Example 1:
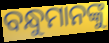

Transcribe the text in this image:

ବନ୍ଧୁମାନଙ୍କୁ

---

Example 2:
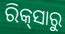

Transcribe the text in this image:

ରିକ୍‌ସାରୁ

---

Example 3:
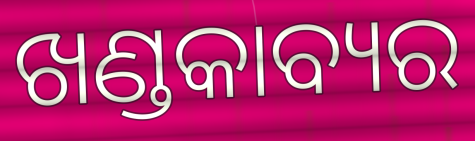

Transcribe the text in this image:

ଖଣ୍ଡକାବ୍ୟର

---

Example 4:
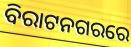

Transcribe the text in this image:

ବିରାଟନଗରରେ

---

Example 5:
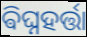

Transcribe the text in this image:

ଵିଘ୍ନହର୍ତ୍ତା